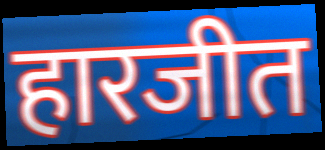
हारजीत